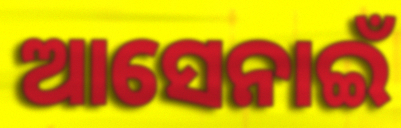
ଆସେନାଇଁ